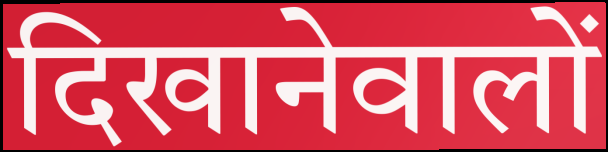
दिखानेवालों